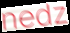
nedz